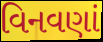
વિનવણાં